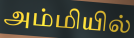
அம்மியில்